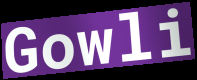
Gowli